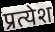
प्रत्येश